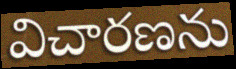
విచారణను